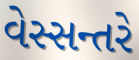
વેસ્સન્તરે